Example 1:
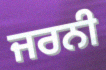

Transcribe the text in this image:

ਜਰਨੀ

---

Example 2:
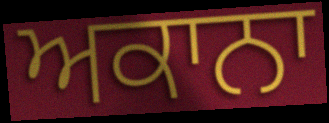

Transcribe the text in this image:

ਅਕਾਨਾ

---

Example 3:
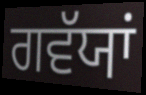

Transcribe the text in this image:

ਗਵੱਯਾਂ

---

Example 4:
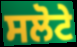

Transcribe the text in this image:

ਸਲੋਟੇ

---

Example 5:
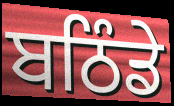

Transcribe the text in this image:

ਬਠਿੰਡੇ